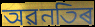
অৱনতিৰ